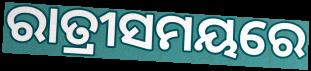
ରାତ୍ରୀସମୟରେ